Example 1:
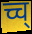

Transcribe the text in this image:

च्च्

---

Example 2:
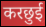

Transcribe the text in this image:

करछुई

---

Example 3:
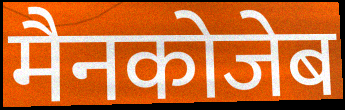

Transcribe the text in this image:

मैनकोजेब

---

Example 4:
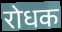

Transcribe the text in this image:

रोधक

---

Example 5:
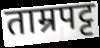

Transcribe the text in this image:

ताम्रपट्ट